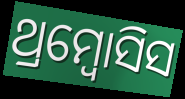
ଥ୍ରମ୍ବୋସିସ